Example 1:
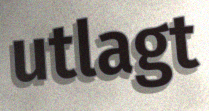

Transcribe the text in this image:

utlagt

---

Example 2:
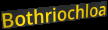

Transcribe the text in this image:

Bothriochloa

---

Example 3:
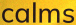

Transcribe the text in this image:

calms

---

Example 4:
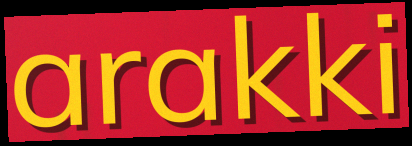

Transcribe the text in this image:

arakki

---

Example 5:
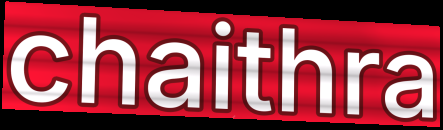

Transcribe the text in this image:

chaithra